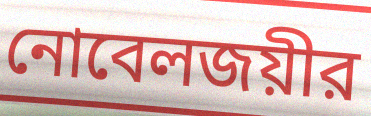
নোবেলজয়ীর